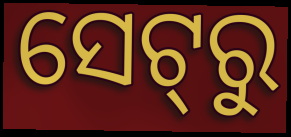
ସେଟ୍‌ରୁ